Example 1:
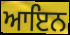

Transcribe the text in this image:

ਆਇਨ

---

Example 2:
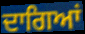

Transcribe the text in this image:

ਦਾਗਿਆਂ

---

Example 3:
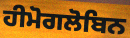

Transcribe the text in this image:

ਹੀਮੋਗਲੋਬਿਨ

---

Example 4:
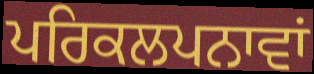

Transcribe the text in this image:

ਪਰਿਕਲਪਨਾਵਾਂ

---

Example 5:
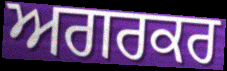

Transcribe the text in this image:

ਅਗਰਕਰ